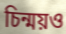
চিন্ময়ও